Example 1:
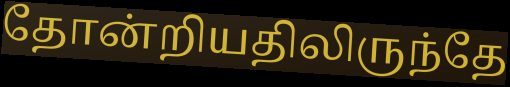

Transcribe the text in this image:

தோன்றியதிலிருந்தே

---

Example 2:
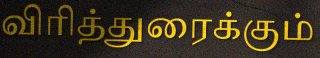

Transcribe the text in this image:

விரித்துரைக்கும்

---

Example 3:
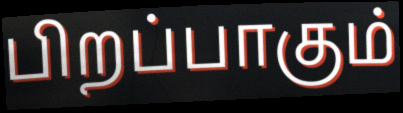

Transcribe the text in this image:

பிறப்பாகும்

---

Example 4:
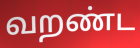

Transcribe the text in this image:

வறண்ட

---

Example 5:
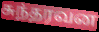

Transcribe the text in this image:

சுந்தரவன